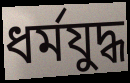
ধর্মযুদ্ধ